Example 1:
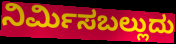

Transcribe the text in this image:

ನಿರ್ಮಿಸಬಲ್ಲುದು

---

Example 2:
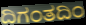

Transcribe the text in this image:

ದಿಗಂತದಿಂ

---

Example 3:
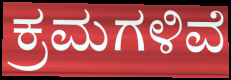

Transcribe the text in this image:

ಕ್ರಮಗಳಿವೆ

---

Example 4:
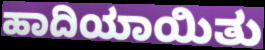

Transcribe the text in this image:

ಹಾದಿಯಾಯಿತು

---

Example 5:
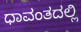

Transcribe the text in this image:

ಧಾವಂತದಲ್ಲಿ